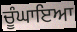
ਚੂੰਘਾਇਆ